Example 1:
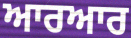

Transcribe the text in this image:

ਆਰਆਰ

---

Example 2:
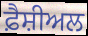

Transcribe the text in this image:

ਫ਼ੈਸ਼ੀਅਲ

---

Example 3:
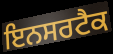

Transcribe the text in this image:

ਇਨਸਰਟੈਕ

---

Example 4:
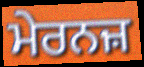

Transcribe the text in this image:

ਮੇਰਨਜ਼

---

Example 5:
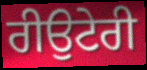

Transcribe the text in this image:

ਰੀਉਟੇਰੀ